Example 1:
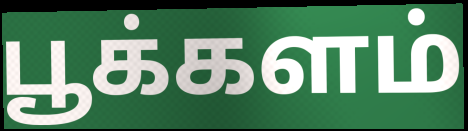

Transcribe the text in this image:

பூக்களம்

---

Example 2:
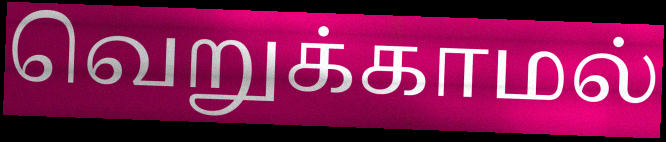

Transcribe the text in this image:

வெறுக்காமல்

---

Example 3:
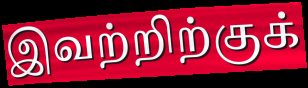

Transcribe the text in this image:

இவற்றிற்குக்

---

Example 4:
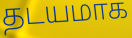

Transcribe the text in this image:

தடயமாக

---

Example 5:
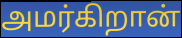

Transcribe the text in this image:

அமர்கிறான்